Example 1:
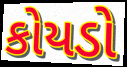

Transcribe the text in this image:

કોયડો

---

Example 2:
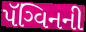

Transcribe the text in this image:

પૅંગ્વિનની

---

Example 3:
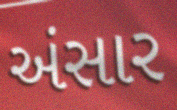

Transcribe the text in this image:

અંસાર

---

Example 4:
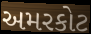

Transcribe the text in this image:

અમરકોટ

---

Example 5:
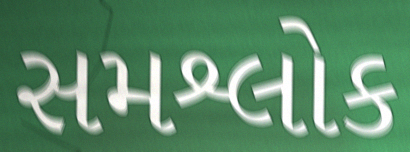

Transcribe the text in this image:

સમશ્લોક